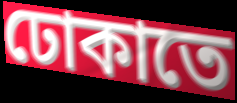
ঢোকাতে